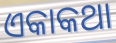
ଏକାକଥା